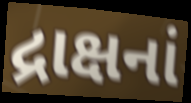
દ્રાક્ષનાં